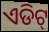
ଏଡିଟ୍